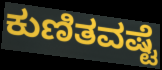
ಕುಣಿತವಷ್ಟೆ